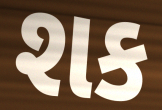
શક